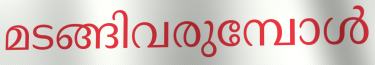
മടങ്ങിവരുമ്പോൾ